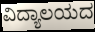
ವಿದ್ಯಾಲಯದ